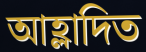
আহ্লাদিত